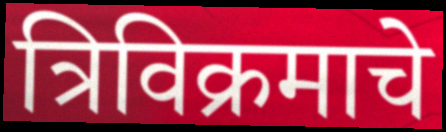
त्रिविक्रमाचे